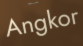
Angkor